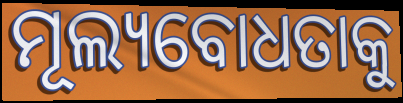
ମୂଲ୍ୟବୋଧତାକୁ